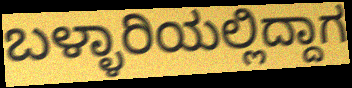
ಬಳ್ಳಾರಿಯಲ್ಲಿದ್ದಾಗ